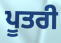
ਪੂਤਰੀ